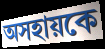
অসহায়কে